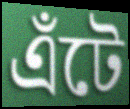
এঁটে